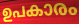
ഉപകാരം